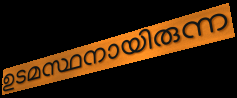
ഉടമസ്ഥനായിരുന്ന